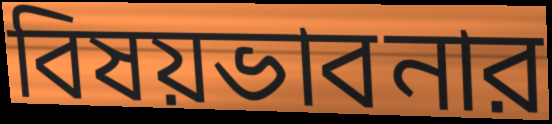
বিষয়ভাবনার